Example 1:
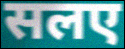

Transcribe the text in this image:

सलए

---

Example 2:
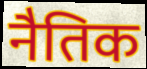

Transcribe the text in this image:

नैतिक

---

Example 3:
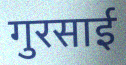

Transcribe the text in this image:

गुरसाई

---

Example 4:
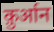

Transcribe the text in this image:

क़ुर्आन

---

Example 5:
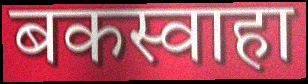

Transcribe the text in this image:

बकस्वाहा